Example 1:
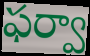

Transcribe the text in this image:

ఫర్వా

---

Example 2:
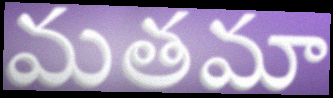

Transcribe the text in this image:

మతమా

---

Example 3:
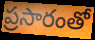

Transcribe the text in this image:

ప్రసారంతో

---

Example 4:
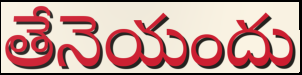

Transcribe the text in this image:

తేనెయందు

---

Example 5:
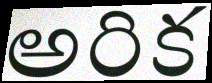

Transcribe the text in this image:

అరిక